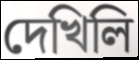
দেখিলি